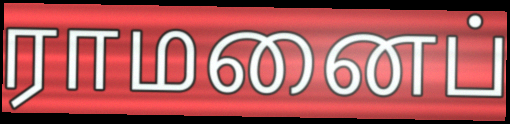
ராமனைப்